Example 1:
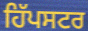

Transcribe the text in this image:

ਹਿੱਪਸਟਰ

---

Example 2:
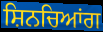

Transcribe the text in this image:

ਸ਼ਿਨਚਿਆਂਗ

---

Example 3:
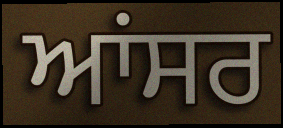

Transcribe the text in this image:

ਆਂਸਰ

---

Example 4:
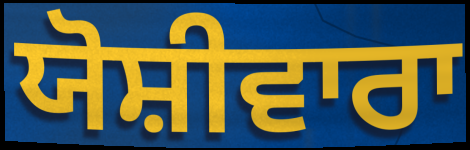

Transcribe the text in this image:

ਯੋਸ਼ੀਵਾਰਾ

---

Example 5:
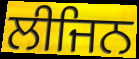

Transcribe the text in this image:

ਲੀਜਿਨ